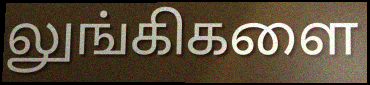
லுங்கிகளை